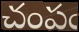
చంపఁ